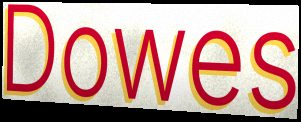
Dowes